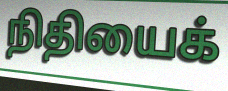
நிதியைக்